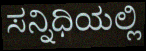
ಸನ್ನಿಧಿಯಲ್ಲಿ